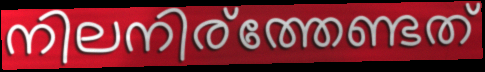
നിലനിര്ത്തേണ്ടത്